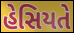
હેસિયતે